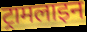
ट्रामलाइन